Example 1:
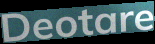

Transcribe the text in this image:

Deotare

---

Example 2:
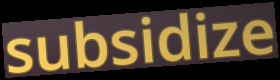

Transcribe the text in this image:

subsidize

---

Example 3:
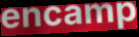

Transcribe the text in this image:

encamp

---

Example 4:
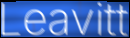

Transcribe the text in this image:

Leavitt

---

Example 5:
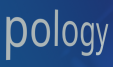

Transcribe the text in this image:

pology